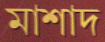
মাশাদ